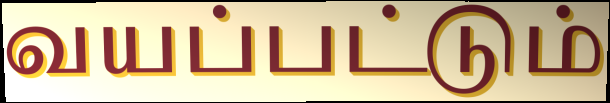
வயப்பட்டும்